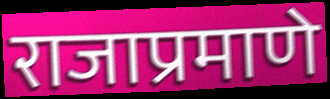
राजाप्रमाणे